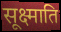
सूक्ष्माति